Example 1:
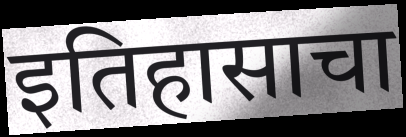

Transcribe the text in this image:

इतिहासाचा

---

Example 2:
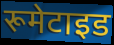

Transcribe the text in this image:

रूमेटाइड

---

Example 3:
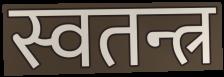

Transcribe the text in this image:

स्वतन्त्र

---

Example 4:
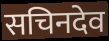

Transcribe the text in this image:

सचिनदेव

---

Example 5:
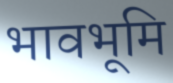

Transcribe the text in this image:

भावभूमि